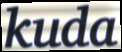
kuda